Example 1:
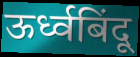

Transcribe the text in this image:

ऊर्ध्वबिंदू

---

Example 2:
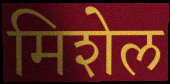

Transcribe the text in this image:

मिशेल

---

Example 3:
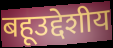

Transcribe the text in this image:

बहूउद्देशीय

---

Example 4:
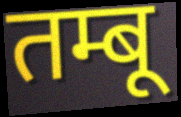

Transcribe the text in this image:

तम्बू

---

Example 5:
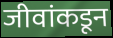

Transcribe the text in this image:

जीवांकडून